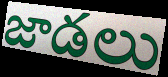
జాడలు